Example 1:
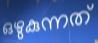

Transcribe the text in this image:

ഒഴുകുന്നത്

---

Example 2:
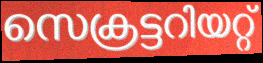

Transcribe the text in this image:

സെക്രട്ടറിയറ്റ്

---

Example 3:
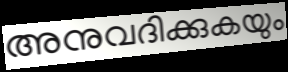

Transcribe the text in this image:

അനുവദിക്കുകയും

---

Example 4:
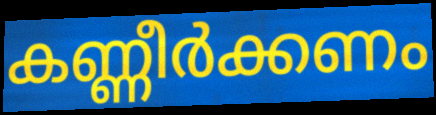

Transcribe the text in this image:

കണ്ണീർക്കണം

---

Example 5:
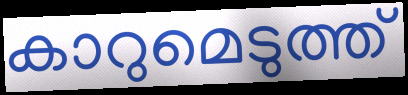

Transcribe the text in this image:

കാറുമെടുത്ത്